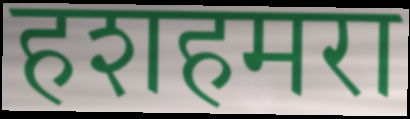
हशहमरा